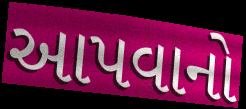
આપવાનો